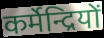
कर्मेन्द्रियों